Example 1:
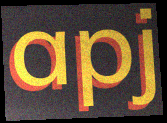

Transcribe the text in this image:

apj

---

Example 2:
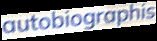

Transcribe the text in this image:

autobiographis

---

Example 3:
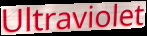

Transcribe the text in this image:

Ultraviolet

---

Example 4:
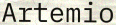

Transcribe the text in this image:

Artemio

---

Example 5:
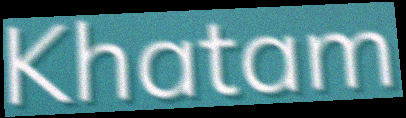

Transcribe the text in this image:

Khatam